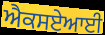
ਐਕਸਏਆਈ